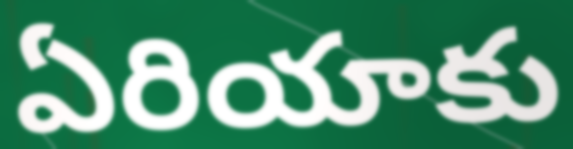
ఏరియాకు